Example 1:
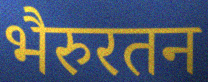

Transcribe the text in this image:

भैरुरतन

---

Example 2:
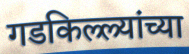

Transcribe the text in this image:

गडकिल्ल्यांच्या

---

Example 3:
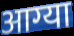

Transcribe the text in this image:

आग्या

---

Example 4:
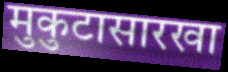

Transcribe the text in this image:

मुकुटासारखा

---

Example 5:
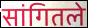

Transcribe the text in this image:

सांगितले